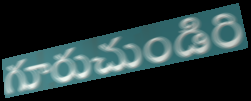
గూరుచుండిరి